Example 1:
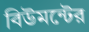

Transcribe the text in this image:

বিউমন্টের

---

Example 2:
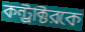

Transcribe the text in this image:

কন্ট্রাক্টরকে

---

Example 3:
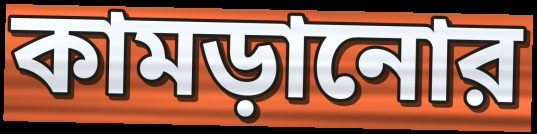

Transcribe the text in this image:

কামড়ানোর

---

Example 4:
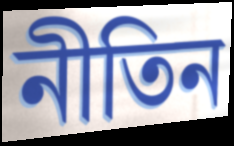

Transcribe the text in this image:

নীতিন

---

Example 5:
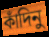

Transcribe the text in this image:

কাঁদিনু